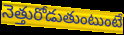
నెత్తురోడుతుంటుంటే